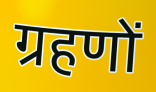
ग्रहणों